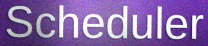
Scheduler